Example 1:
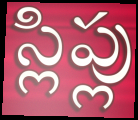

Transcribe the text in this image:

స్లిప్లు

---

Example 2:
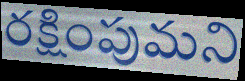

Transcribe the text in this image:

రక్షింపుమని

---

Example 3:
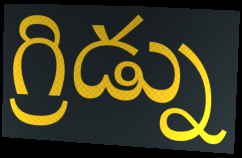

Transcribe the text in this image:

గ్రిడ్ను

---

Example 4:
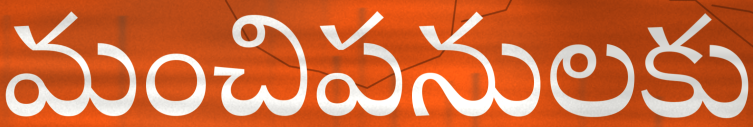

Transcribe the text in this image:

మంచిపనులకు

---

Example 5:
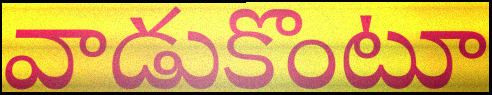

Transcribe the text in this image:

వాడుకొంటూ